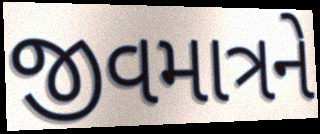
જીવમાત્રને